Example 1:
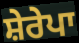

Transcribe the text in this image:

ਸ਼ੇਰੇਪਾ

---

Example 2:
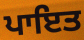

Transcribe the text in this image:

ਪਾਇਤ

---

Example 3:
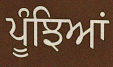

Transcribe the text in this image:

ਪੂੰਝਿਆਂ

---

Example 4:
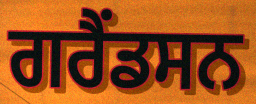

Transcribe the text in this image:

ਗਰੈਂਡਸਨ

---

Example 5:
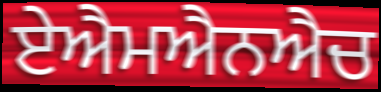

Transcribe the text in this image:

ਏਐਮਐਨਐਚ